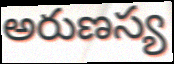
అరుణస్య